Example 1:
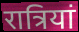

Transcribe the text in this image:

रात्रियां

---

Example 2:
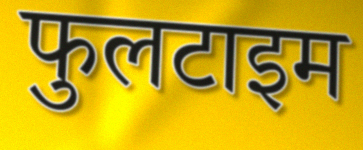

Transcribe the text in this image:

फुलटाइम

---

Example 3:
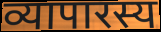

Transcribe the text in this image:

व्यापारस्य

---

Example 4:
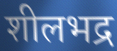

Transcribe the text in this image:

शीलभद्र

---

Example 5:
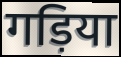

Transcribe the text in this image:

गड़िया